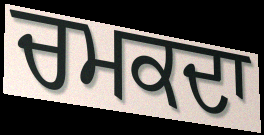
ਚਮਕਦਾ